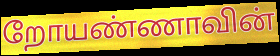
றோயண்ணாவின்